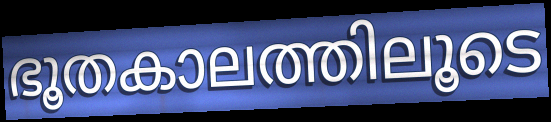
ഭൂതകാലത്തിലൂടെ